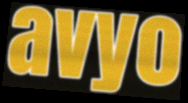
avyo